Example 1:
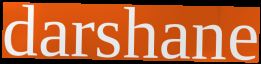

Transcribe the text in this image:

darshane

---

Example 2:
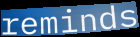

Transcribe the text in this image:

reminds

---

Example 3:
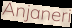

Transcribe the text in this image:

Anjaneri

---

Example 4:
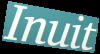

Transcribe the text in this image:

Inuit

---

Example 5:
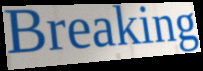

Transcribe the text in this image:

Breaking